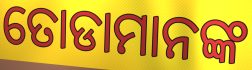
ତୋଡାମାନଙ୍କ